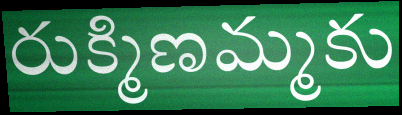
రుక్మిణమ్మకు